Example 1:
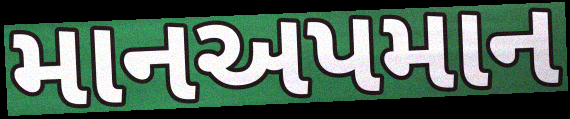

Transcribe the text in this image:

માનઅપમાન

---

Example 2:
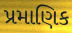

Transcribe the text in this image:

પ્રમાણિક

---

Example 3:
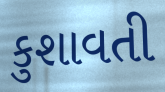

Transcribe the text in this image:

કુશાવતી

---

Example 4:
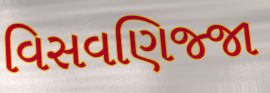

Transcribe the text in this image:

વિસવણિજ્જા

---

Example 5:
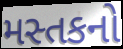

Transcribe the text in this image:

મસ્તકનો